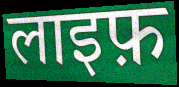
लाइफ़